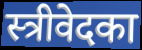
स्त्रीवेदका